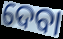
ଦେବା